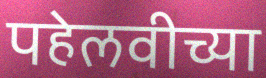
पहेलवीच्या